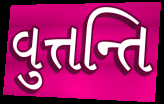
વુત્તન્તિ